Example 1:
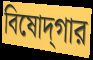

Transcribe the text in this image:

বিষোদ্‌গার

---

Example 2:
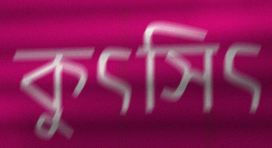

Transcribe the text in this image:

কুৎসিৎ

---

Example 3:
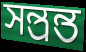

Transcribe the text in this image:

সন্ত্রন্ত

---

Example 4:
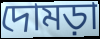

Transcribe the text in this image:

দোমড়া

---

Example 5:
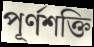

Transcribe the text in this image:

পূর্ণশক্তি